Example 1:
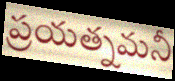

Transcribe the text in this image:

ప్రయత్నమనీ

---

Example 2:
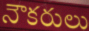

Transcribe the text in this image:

నౌకరులు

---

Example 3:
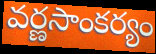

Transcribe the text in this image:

వర్ణసాంకర్యం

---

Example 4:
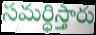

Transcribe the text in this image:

సమర్ధిస్తారు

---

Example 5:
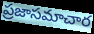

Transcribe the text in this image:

ప్రజాసమాచార